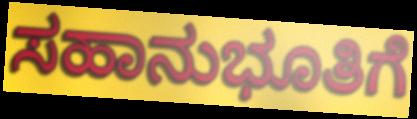
ಸಹಾನುಭೂತಿಗೆ